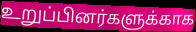
உறுப்பினர்களுக்காக